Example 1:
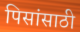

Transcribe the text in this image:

पिसांसाठी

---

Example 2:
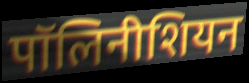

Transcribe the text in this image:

पॉलिनीशियन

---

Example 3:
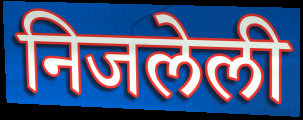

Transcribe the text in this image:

निजलेली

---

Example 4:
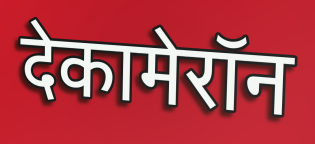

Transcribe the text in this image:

देकामेरॉन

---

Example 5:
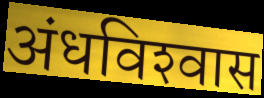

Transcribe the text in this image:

अंधविश्वास